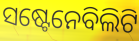
ସଷ୍ଟେନେବିଲିଟି